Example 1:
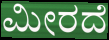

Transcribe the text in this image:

ಮೀರದೆ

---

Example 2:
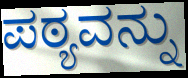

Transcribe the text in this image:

ಪಠ್ಯವನ್ನು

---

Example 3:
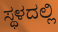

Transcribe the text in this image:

ಸ್ಥಳದಲ್ಲಿ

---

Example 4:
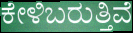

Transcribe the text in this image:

ಕೇಳಿಬರುತ್ತಿವೆ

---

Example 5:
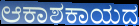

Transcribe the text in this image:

ಆಕಾಶಕಾಯದ